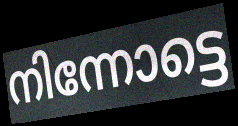
നിന്നോട്ടെ